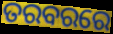
ତରବରରେ